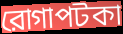
রোগাপটকা